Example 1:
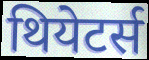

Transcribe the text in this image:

थियेटर्स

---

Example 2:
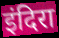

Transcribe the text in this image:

इंदिरा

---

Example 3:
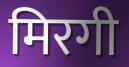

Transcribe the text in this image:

मिरगी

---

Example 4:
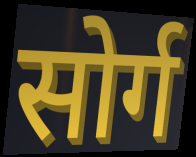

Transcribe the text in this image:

सोर्ग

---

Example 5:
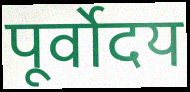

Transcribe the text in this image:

पूर्वोदय